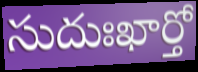
సుదుఃఖార్తో